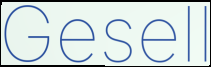
Gesell